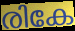
രികേ